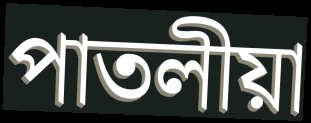
পাতলীয়া